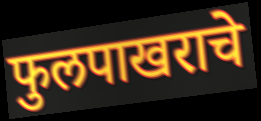
फुलपाखराचे